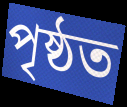
পৃষ্ঠত